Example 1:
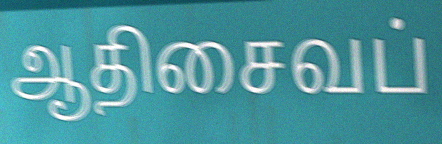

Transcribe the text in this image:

ஆதிசைவப்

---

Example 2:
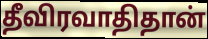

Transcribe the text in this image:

தீவிரவாதிதான்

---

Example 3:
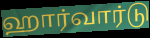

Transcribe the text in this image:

ஹார்வார்டு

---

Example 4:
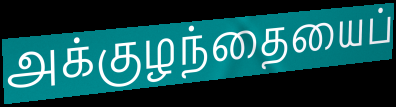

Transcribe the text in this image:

அக்குழந்தையைப்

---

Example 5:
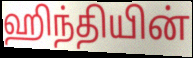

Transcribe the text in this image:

ஹிந்தியின்